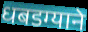
धबडग्याने